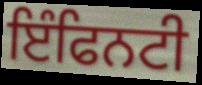
ਇੰਫਿਨਟੀ